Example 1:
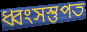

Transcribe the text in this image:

ধ্বংসস্তুপত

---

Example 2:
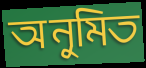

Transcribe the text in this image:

অনুমিত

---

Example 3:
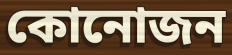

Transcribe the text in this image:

কোনোজন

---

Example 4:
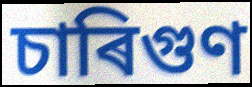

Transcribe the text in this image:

চাৰিগুণ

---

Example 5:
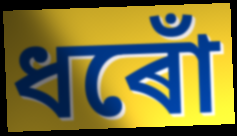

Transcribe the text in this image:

ধৰোঁ